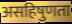
असहिषुणता